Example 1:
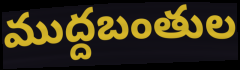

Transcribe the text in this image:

ముద్దబంతుల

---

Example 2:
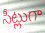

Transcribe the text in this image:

సీట్లుగా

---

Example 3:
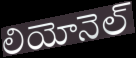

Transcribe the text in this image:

లియోనెల్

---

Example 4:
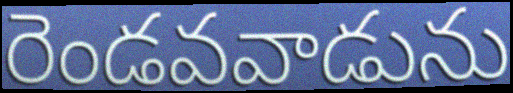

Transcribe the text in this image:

రెండవవాడును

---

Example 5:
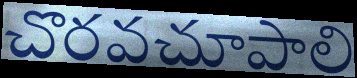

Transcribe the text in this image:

చొరవచూపాలి